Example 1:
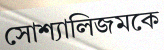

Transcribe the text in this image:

সোশ্যালিজমকে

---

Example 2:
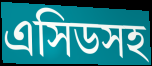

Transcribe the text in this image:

এসিডসহ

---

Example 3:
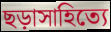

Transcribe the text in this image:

ছড়াসাহিত্যে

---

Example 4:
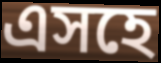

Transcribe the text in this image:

এসহে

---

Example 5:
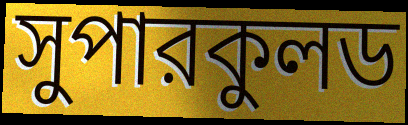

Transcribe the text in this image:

সুপারকুলড